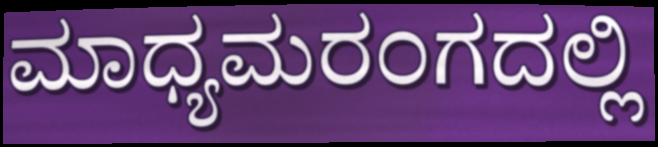
ಮಾಧ್ಯಮರಂಗದಲ್ಲಿ